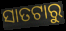
ସାତଟାରୁ